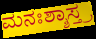
ಮನಃಶ್ಶಾಸ್ತ್ರ